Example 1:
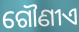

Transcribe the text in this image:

ଗୌଣୀଏ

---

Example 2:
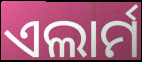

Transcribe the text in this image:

ଏଲାର୍ମ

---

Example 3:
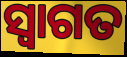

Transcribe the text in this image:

ସ୍ୱାଗତ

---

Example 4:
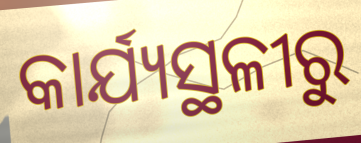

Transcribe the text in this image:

କାର୍ଯ୍ୟସ୍ଥଳୀରୁ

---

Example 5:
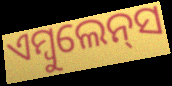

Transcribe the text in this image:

ଏମ୍ବୁଲେନ୍‌ସ